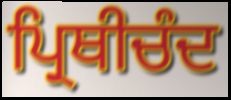
ਪ੍ਰਿਥੀਚੰਦ